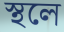
স্থলে